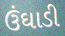
ઉંઘાડી